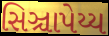
સિઞ્ચાપેય્ય